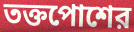
তক্তপোশের